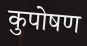
कुपोषण